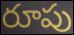
రూపు